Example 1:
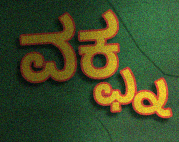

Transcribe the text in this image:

ವಕ್ಫ್ನ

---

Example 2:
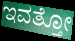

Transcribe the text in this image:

ಇವತ್ತೋ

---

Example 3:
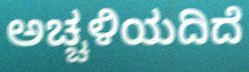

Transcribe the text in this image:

ಅಚ್ಚಳಿಯದಿದೆ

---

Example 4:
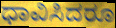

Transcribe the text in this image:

ಧಾವಿಸಿದರೂ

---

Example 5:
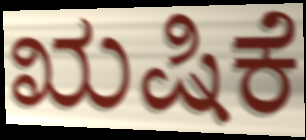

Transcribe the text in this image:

ಋಷಿಕೆ